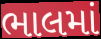
ભાલમાં